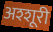
अश्‍शूरी